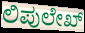
ಲಿಪುಲೇಖ್